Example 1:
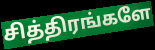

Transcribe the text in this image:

சித்திரங்களே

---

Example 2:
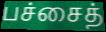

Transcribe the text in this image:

பச்சைத்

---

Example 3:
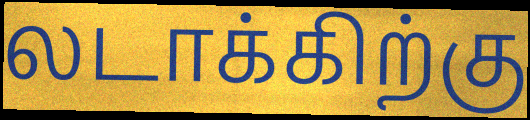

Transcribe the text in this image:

லடாக்கிற்கு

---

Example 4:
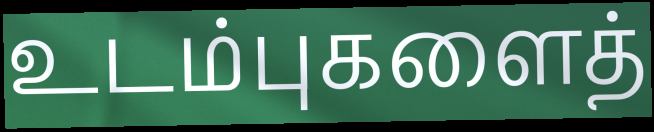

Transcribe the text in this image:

உடம்புகளைத்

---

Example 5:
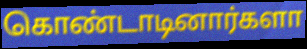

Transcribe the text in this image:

கொண்டாடினார்களா